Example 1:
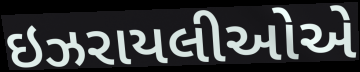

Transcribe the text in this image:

ઇઝરાયલીઓએ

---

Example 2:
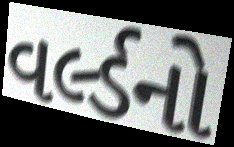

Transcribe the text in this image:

વર્લ્ડનો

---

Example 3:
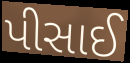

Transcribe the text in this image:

પીસાઈ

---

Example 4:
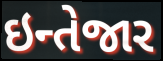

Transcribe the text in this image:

ઇન્તેજાર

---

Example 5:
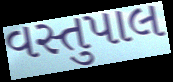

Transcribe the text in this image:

વસ્તુપાલ